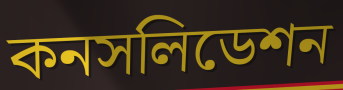
কনসলিডেশন